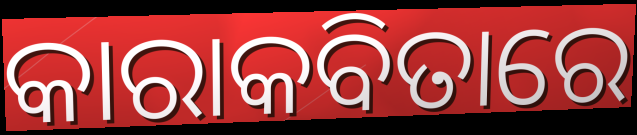
କାରାକବିତାରେ